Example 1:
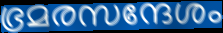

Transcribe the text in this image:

ഭ്രമരസന്ദേശം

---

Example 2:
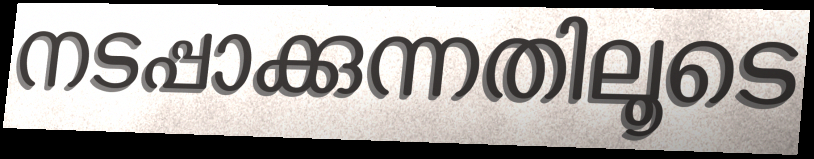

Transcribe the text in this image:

നടപ്പാക്കുന്നതിലൂടെ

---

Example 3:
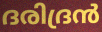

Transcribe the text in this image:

ദരിദ്രൻ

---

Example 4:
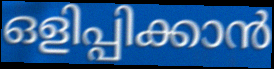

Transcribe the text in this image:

ഒളിപ്പിക്കാൻ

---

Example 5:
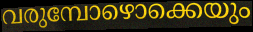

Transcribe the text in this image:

വരുമ്പോഴൊക്കെയും